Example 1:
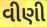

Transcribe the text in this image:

વીણી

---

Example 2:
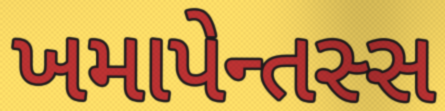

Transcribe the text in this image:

ખમાપેન્તસ્સ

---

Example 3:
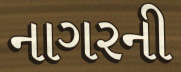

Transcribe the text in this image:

નાગરની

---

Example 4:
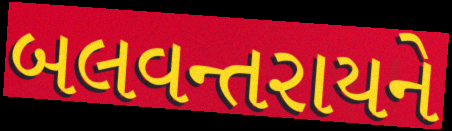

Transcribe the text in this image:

બલવન્તરાયને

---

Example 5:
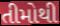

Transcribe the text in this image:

તીમોથી